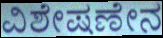
ವಿಶೇಷಣೇನ